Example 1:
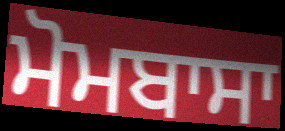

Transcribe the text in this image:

ਮੋਮਬਾਸਾ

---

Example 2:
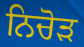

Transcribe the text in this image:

ਨਿਚੋਡ਼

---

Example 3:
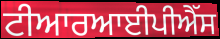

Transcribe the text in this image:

ਟੀਆਰਆਈਪੀਐੱਸ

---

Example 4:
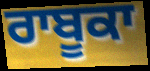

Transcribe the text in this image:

ਰਾਬੂਕਾ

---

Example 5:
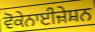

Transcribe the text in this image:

ਵੋਕੇਨਾਈਜ਼ੇਸ਼ਨ